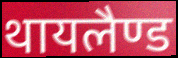
थायलैण्ड